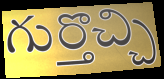
గుర్తొచ్చి